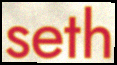
seth